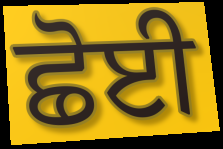
ਛੋਈ